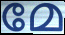
മേ